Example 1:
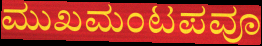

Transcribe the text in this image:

ಮುಖಮಂಟಪವೂ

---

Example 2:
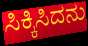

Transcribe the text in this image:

ಸಿಕ್ಕಿಸಿದನು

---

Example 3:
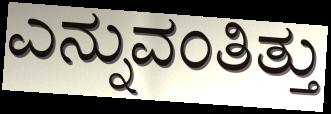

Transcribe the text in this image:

ಎನ್ನುವಂತಿತ್ತು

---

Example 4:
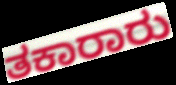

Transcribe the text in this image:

ತಕಾರಾರು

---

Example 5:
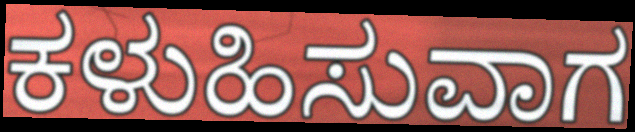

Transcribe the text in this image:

ಕಳುಹಿಸುವಾಗ